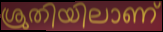
ശ്രുതിയിലാണ്